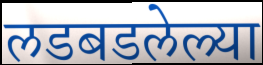
लडबडलेल्या